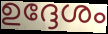
ഉദ്ദേശം